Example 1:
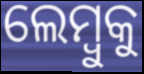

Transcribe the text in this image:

ଲେମ୍ବୁକୁ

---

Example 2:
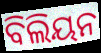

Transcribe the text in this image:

ବିଲିୟନ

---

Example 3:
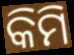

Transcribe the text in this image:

କିମି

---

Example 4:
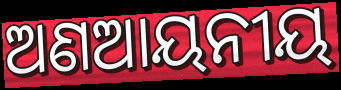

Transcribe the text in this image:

ଅଣଆୟନୀୟ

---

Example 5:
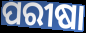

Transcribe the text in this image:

ପରୀଷା